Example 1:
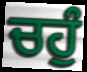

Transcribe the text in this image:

ਚਹੁੰ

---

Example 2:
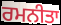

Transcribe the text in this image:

ਰਮਨੀਤਾ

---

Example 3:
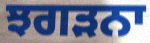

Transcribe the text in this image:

ਝਗੜਨਾ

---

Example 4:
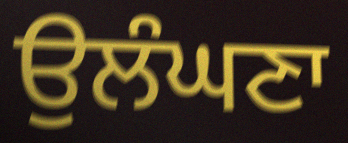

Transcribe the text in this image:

ਉਲੰਘਣਾ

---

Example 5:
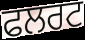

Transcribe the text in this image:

ਫਲਰਟ